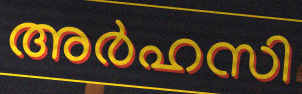
അർഹസി